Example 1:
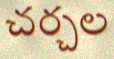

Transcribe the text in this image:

చర్చల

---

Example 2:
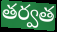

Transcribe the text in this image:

తర్వత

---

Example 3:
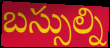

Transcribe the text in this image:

బస్సుల్ని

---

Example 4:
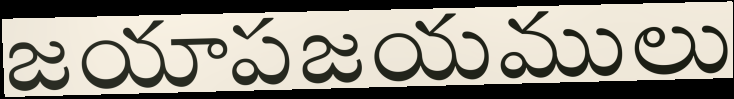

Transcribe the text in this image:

జయాపజయములు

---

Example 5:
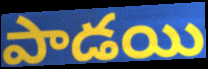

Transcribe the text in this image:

పాడయి